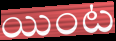
యింట